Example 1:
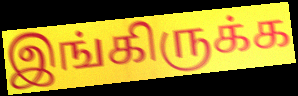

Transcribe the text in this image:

இங்கிருக்க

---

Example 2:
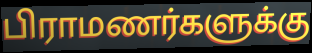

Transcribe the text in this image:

பிராமணர்களுக்கு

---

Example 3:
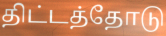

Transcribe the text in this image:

திட்டத்தோடு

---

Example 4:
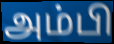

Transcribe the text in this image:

அம்பி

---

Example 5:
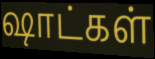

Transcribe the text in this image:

ஷாட்கள்